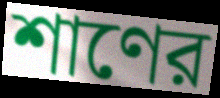
শাণের